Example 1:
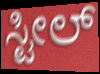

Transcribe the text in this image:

ಸ್ಟೀಲ್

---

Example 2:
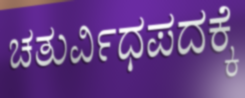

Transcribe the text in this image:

ಚತುರ್ವಿಧಪದಕ್ಕೆ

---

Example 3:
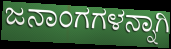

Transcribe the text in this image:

ಜನಾಂಗಗಳನ್ನಾಗಿ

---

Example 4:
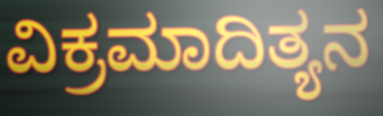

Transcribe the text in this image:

ವಿಕ್ರಮಾದಿತ್ಯನ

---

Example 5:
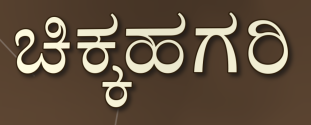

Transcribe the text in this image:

ಚಿಕ್ಕಹಗರಿ